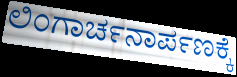
ಲಿಂಗಾರ್ಚನಾರ್ಪಣಕ್ಕೆ